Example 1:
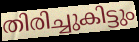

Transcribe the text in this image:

തിരിച്ചുകിട്ടും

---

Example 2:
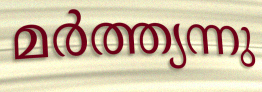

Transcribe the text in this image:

മർത്ത്യന്നു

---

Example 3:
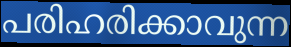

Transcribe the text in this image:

പരിഹരിക്കാവുന്ന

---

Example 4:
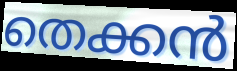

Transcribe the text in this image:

തെക്കൻ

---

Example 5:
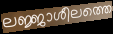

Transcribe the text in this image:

ലജ്ജാശീലത്തെ